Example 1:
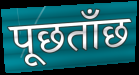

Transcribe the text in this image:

पूछताँछ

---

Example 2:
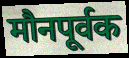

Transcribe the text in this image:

मौनपूर्वक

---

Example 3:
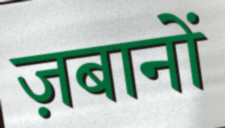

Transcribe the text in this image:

ज़बानों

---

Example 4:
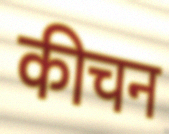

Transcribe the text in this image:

कीचन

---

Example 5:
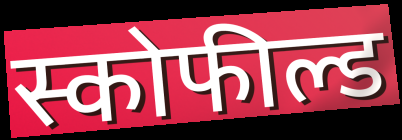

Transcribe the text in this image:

स्कोफील्ड